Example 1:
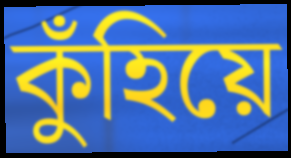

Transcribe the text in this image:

কুঁহিয়ে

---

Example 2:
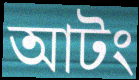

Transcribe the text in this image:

আটং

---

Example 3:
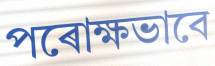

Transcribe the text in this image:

পৰোক্ষভাবে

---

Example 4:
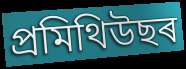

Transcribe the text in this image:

প্ৰমিথিউছৰ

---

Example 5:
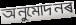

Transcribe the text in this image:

অনুমোদনৰ